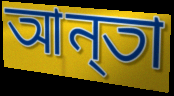
আন্‌তা